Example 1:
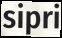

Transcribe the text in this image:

sipri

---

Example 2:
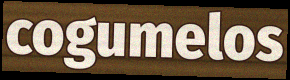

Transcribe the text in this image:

cogumelos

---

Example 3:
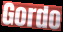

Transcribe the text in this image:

Gordo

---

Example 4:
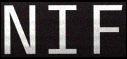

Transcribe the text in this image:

NIF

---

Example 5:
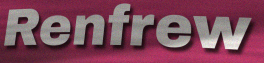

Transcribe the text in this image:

Renfrew